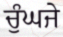
ਚੁੰਘਜੇ